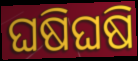
ଘଷିଘଷି